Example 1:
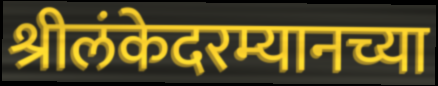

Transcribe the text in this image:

श्रीलंकेदरम्यानच्या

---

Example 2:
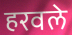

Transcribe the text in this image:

हरवले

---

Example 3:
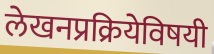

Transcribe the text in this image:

लेखनप्रक्रियेविषयी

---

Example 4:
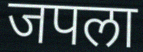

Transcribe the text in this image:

जपला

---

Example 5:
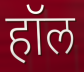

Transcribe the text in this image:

हॉल